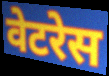
वेटरेस